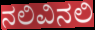
ನಲಿವಿನಲಿ